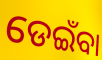
ଡେଇଁବା